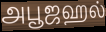
அபூஜஹல்